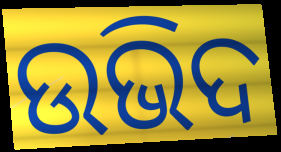
ଉଭିଦ